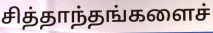
சித்தாந்தங்களைச்